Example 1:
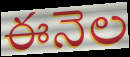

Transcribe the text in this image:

ఈనెల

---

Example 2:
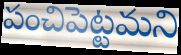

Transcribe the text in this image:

పంచిపెట్టమని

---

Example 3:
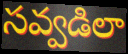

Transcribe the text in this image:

సవ్వడిలా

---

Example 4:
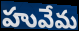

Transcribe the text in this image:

హువేమ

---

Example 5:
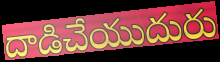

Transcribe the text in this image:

దాడిచేయుదురు